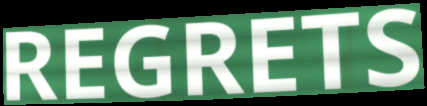
REGRETS